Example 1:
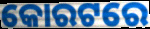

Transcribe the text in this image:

କୋରଟରେ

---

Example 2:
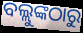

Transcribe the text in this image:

ବଲ୍ଲୁଙ୍କଠାରୁ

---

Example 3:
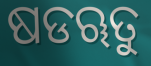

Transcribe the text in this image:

ଷଡୠତୁ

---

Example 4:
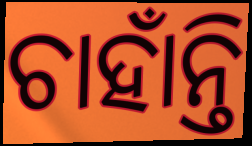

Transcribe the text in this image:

ଚାହାଁନ୍ତି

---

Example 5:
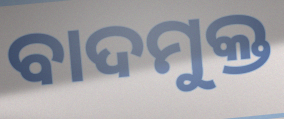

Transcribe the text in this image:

ବାଦମୁକ୍ତ